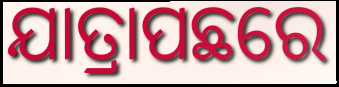
ଯାତ୍ରାପଛରେ